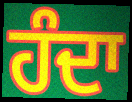
ਹੰਦਾ